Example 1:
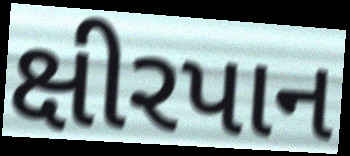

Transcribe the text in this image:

ક્ષીરપાન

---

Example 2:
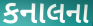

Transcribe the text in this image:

કનાલના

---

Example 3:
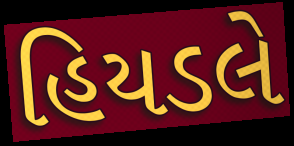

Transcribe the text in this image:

હિયડલે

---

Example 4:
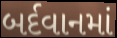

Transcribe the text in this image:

બર્દવાનમાં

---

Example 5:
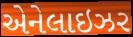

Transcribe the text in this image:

એનેલાઇઝર